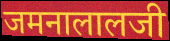
जमनालालजी